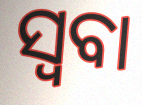
ସ୍ୱବା